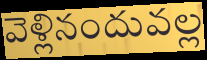
వెళ్లినందువల్ల